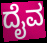
ದೈವ